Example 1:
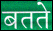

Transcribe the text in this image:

बतते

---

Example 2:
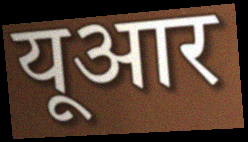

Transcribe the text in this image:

यूआर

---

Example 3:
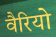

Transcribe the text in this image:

वैरियो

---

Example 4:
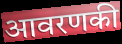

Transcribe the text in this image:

आवरणकी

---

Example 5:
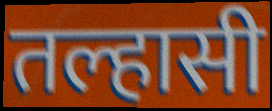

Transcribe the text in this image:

तल्हासी